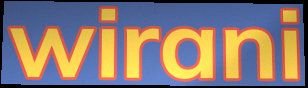
wirani